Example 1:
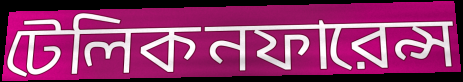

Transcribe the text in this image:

টেলিকনফারেন্স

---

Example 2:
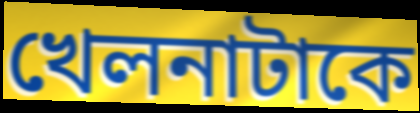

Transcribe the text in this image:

খেলনাটাকে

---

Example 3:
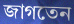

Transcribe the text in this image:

জাগতেন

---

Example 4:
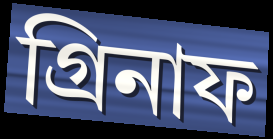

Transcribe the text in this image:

গ্রিনাফ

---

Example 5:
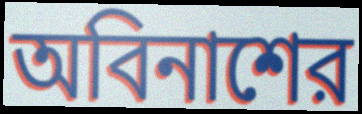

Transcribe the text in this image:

অবিনাশের